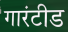
गारंटीड